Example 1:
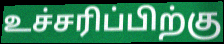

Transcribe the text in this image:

உச்சரிப்பிற்கு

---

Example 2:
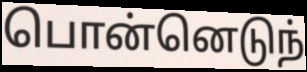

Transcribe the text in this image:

பொன்னெடுந்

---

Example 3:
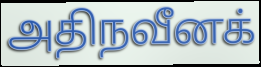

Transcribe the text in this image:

அதிநவீனக்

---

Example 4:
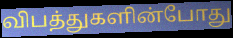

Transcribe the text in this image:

விபத்துகளின்போது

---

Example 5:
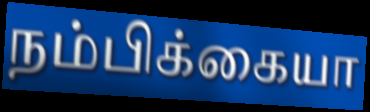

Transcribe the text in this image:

நம்பிக்கையா